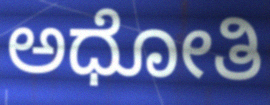
ಅಧೋತಿ